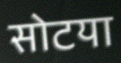
सोटया